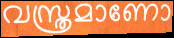
വസ്ത്രമാണോ